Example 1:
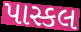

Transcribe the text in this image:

પાસ્કલ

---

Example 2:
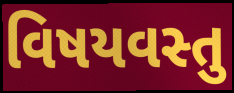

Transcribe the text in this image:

વિષયવસ્તુ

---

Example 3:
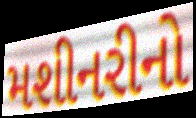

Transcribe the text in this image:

મશીનરીનો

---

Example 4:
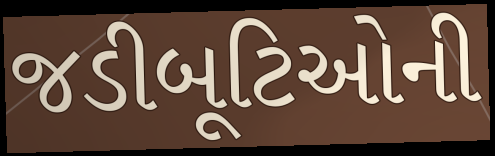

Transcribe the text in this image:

જડીબૂટિઓની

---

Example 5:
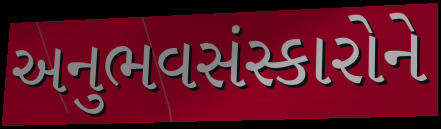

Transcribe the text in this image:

અનુભવસંસ્કારોને